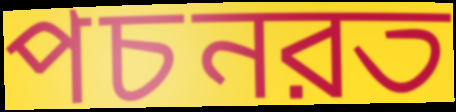
পচনরত